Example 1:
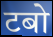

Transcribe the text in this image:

टबो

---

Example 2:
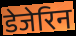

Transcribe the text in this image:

डेजेरिन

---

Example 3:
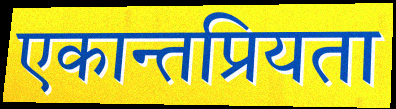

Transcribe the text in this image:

एकान्तप्रियता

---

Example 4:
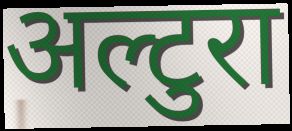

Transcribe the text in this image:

अल्टुरा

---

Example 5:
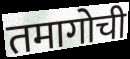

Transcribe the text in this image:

तमागोची